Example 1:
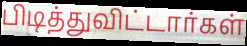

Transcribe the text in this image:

பிடித்துவிட்டார்கள்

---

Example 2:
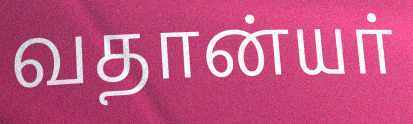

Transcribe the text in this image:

வதான்யர்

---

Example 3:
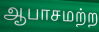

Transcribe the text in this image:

ஆபாசமற்ற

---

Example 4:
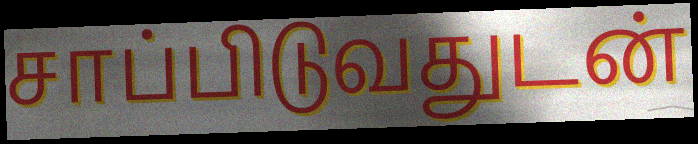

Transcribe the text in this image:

சாப்பிடுவதுடன்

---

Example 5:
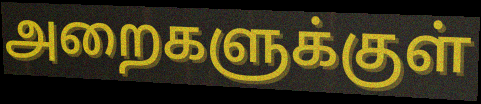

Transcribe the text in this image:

அறைகளுக்குள்